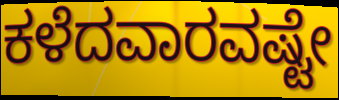
ಕಳೆದವಾರವಷ್ಟೇ